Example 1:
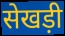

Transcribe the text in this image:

सेखड़ी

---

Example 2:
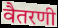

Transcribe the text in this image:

वैतरणी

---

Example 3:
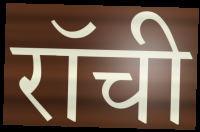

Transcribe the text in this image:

रॉची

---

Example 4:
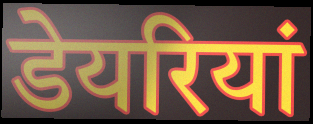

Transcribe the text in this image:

डेयरियां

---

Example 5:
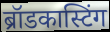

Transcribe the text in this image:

ब्रॉडकास्टिंग